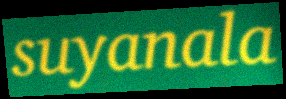
suyanala